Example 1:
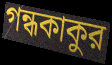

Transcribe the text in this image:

গন্ধকাকুর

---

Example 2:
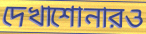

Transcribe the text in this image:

দেখাশোনারও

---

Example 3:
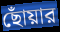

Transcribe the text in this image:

ছোঁয়ার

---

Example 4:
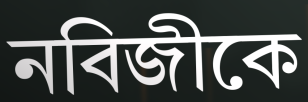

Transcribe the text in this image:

নবিজীকে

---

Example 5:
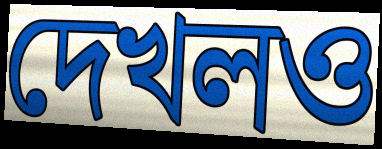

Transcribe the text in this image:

দেখলও